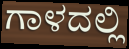
ಗಾಳದಲ್ಲಿ